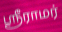
ஶ்ரீராமர்